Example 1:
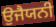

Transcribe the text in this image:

ਉਜੈਯਨੀ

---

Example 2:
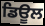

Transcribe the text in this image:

ਡਿਊਲ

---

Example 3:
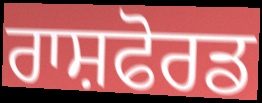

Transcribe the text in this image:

ਰਾਸ਼ਫੋਰਡ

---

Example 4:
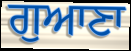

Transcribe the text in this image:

ਗੁਆਣਾ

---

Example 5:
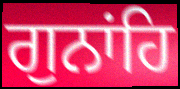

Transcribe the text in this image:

ਗੁਨਾਂਹਿ